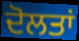
ਦੋਲਤਾਂ